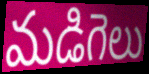
మడిగెలు